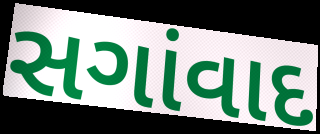
સગાંવાદ